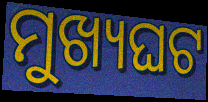
ମୁଖ୍ୟଘଟ